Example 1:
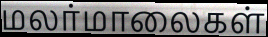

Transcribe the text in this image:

மலர்மாலைகள்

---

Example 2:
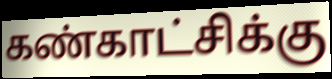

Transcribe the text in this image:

கண்காட்சிக்கு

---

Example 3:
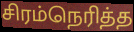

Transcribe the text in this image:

சிரம்நெரித்த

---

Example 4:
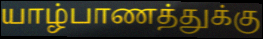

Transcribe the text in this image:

யாழ்பாணத்துக்கு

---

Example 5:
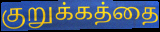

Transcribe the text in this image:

குறுக்கத்தை